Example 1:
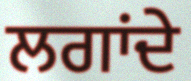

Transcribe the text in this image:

ਲਗਾਂਦੇ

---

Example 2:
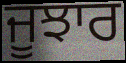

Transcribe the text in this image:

ਜੂਝਾਰ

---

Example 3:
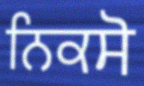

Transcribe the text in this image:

ਨਿਕਸੋ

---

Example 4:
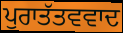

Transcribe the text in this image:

ਪੁਰਾਤੱਤਵਵਾਦ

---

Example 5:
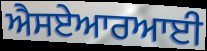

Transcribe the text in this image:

ਐਸਏਆਰਆਈ